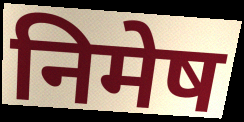
निमेष